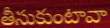
తీసుకుంటావా